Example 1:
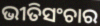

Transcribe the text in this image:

ଭୀତିସଂଚାର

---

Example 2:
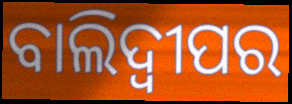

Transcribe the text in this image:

ବାଲିଦ୍ୱୀପର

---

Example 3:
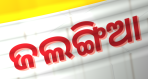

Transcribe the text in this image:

ଜଲଙ୍ଗିଆ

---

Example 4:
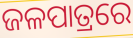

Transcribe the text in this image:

ଜଳପାତ୍ରରେ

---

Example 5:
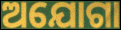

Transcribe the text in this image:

ଅଯୋଗା